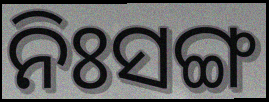
ନିଃସଙ୍ଗ